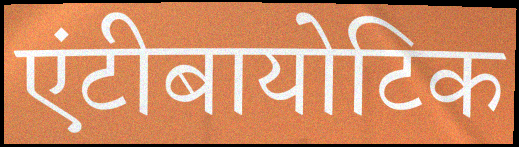
एंटीबायोटिक